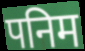
पनिम